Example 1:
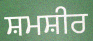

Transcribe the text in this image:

ਸ਼ਮਸ਼ੀਰ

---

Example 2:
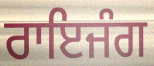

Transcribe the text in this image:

ਰਾਇਜੰਗ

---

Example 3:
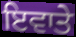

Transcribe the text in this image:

ਇਵਾਤੇ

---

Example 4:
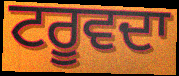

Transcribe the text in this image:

ਟਰੂਵਦਾ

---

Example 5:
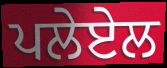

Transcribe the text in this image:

ਪਲੇਏਲ